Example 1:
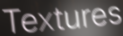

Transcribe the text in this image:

Textures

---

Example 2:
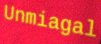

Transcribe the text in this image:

Unmiagal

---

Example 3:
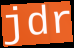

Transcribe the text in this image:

jdr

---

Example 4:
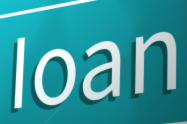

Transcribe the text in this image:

Ioan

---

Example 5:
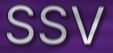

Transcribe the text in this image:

SSV